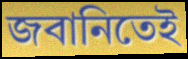
জবানিতেই